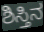
ಶಿಸ್ತಿನ